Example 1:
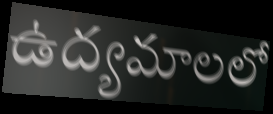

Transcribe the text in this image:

ఉద్యమాలలో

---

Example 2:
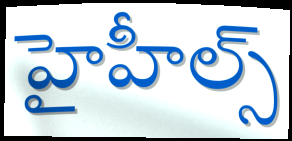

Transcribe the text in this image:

హైహీల్స్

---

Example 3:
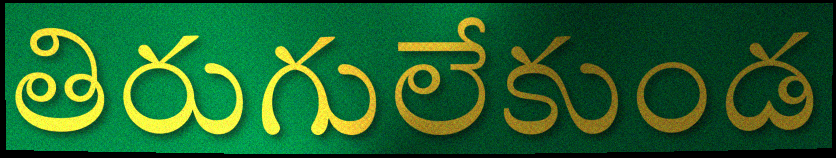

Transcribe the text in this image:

తిరుగులేకుండ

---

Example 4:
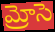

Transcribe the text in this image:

మ్రోసె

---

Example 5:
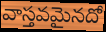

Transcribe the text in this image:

వాస్తవమైనదో